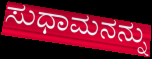
ಸುಧಾಮನನ್ನು